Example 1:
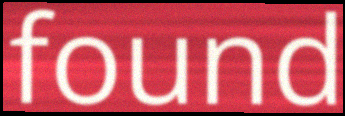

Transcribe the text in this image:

found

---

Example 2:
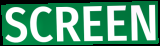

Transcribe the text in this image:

SCREEN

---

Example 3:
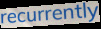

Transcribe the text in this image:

recurrently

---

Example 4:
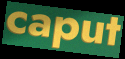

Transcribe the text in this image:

caput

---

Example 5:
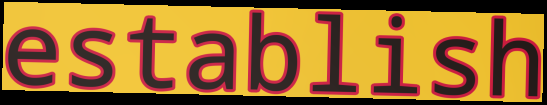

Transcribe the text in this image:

establish